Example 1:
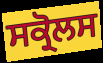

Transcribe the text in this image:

ਸਕ੍ਰੋਲਸ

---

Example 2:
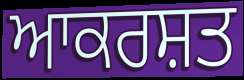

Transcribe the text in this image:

ਆਕਰਸ਼ਤ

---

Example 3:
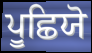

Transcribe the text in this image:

ਪੂਛਿਯੋ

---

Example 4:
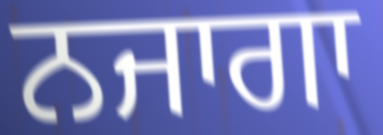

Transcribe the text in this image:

ਨਜਾਗਾ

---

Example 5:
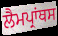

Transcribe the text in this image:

ਲੈਮਪ੍ਰਾਂਥਸ